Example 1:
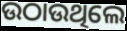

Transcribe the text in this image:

ଉଠାଉଥିଲେ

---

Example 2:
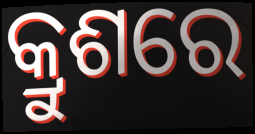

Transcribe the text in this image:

କ୍ରୁଶରେ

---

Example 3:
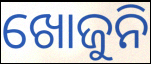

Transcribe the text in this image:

ଖୋଜୁନି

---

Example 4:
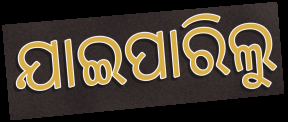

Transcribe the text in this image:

ଯାଇପାରିଲୁ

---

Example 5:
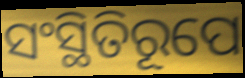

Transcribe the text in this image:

ସଂସ୍ଥିତିରୂପେ